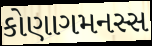
કોણાગમનસ્સ